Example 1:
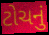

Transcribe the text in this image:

ટોચનું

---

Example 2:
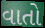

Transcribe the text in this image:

વાતો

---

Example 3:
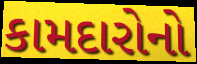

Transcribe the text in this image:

કામદારોનો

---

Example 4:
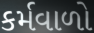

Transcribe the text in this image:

કર્મવાળો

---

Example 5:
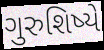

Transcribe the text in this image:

ગુરુશિષ્યે